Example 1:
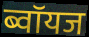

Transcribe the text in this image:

ब्वॉयज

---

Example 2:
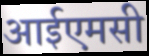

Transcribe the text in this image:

आईएमसी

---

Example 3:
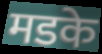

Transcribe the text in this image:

मडके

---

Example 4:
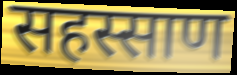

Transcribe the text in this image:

सहस्साण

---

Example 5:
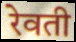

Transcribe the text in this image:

रेवती